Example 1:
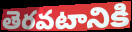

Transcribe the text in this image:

తెరవటానికి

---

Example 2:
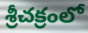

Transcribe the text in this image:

శ్రీచక్రంలో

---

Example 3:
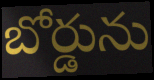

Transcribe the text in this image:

బోర్డును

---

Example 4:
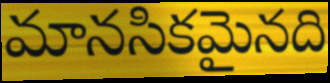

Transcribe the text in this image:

మానసికమైనది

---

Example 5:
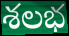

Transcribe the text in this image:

శలభ